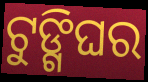
ଟୁଙ୍ଗିଘର